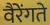
वैरेंगते